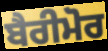
ਬੈਰੀਮੋਰ